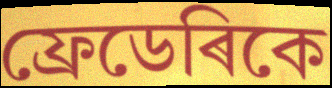
ফ্ৰেডেৰিকে